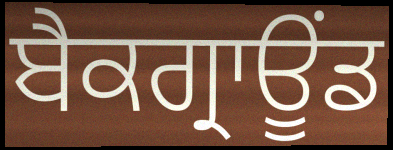
ਬੈਕਗ੍ਰਾਊਂਡ